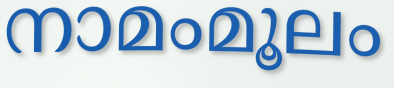
നാമംമൂലം